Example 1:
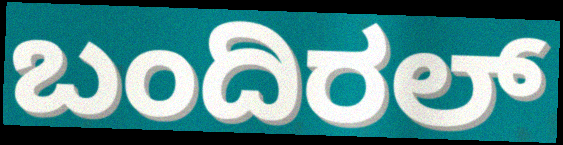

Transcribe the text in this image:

ಬಂದಿರಲ್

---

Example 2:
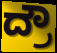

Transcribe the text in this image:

ದ್ರೌ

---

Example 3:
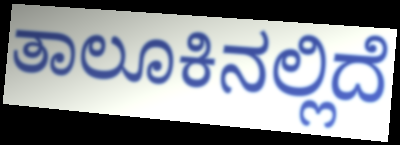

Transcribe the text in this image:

ತಾಲೂಕಿನಲ್ಲಿದೆ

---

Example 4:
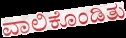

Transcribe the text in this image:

ವಾಲಿಕೊಂಡಿತು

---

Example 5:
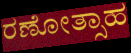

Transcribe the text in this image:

ರಣೋತ್ಸಾಹ